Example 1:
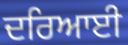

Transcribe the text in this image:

ਦਰਿਆਈ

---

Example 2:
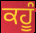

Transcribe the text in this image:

ਕਹੂੰ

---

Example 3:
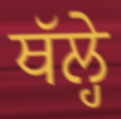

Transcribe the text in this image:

ਥੱਲ੍ਹੇ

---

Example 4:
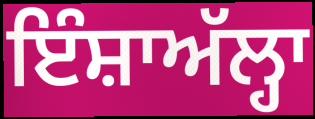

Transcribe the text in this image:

ਇੰਸ਼ਾਅੱਲ੍ਹਾ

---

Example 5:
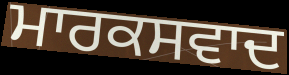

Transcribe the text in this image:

ਮਾਰਕਸਵਾਦ